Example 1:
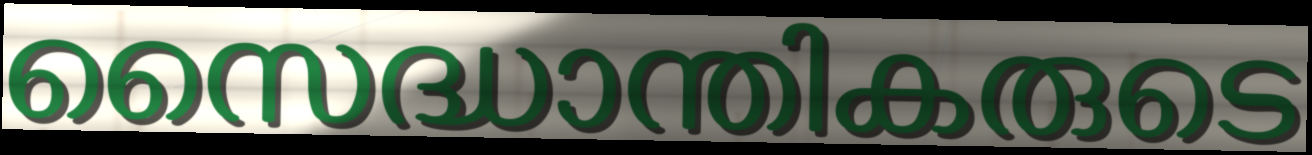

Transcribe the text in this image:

സൈദ്ധാന്തികരുടെ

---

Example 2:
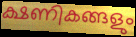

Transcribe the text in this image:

ക്ഷണികങ്ങളും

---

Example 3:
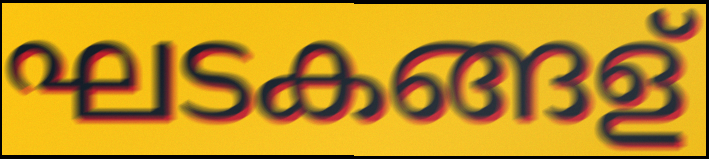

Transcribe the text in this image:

ഘടകങ്ങള്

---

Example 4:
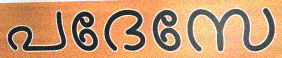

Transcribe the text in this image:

പദേസേ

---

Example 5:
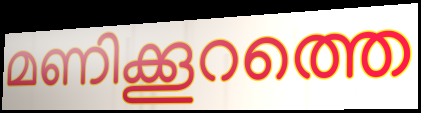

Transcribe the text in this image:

മണിക്കൂറത്തെ